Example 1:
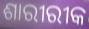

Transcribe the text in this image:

ଶାରୀରୀକ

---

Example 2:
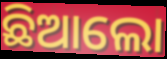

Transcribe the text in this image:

ଛିଆଲୋ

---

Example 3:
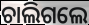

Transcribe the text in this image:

ଚାଲିଗଲେ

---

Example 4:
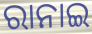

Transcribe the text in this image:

ରାନାଇ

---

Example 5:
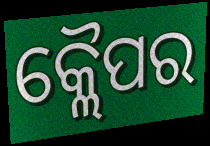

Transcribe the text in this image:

କ୍ଲୈପର